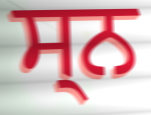
ਸ੍ਨ